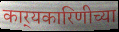
कार्यकारिणीच्या